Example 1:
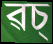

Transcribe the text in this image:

ৱচ্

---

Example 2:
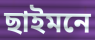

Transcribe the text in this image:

ছাইমনে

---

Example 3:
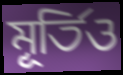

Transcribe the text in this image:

মূৰ্তিও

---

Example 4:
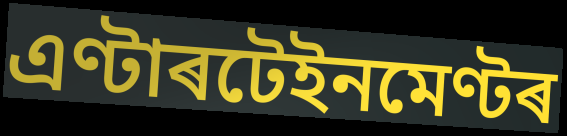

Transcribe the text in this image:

এণ্টাৰটেইনমেণ্টৰ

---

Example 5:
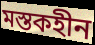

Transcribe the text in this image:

মস্তকহীন